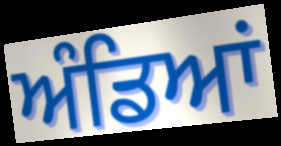
ਅੰਡਿਆਂ